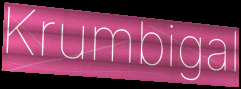
Krumbigal